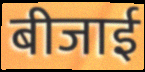
बीजाई